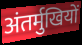
अंतर्मुखियों